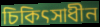
চিকিৎসাধীন